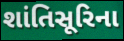
શાંતિસૂરિના